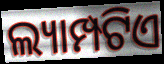
ଲ୍ୟାମ୍ପଟିଏ